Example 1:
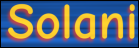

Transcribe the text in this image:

Solani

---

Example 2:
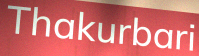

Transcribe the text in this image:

Thakurbari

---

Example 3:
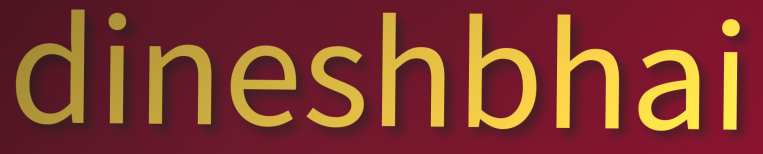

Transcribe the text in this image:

dineshbhai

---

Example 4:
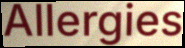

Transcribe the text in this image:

Allergies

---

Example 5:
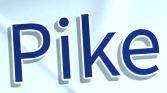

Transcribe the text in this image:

Pike